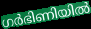
ഗർഭിണിയിൽ